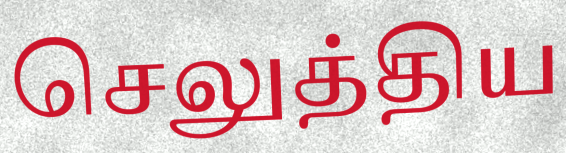
செலுத்திய